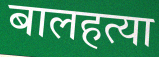
बालहत्या